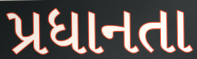
પ્રધાનતા